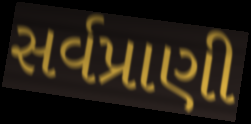
સર્વપ્રાણી